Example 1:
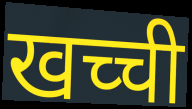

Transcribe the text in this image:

खच्ची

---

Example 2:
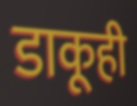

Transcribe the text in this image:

डाकूही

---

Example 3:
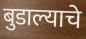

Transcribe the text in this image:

बुडाल्याचे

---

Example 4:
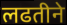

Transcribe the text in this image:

लढतीने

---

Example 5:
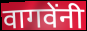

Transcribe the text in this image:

वागवेंनी